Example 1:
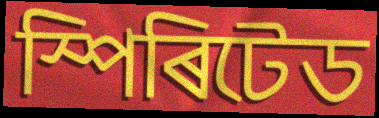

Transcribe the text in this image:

স্পিৰিটেড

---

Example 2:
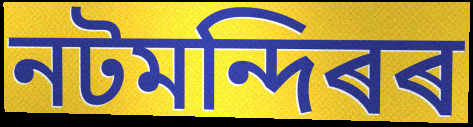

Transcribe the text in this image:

নটমন্দিৰৰ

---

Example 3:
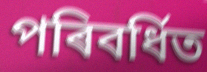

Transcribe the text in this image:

পৰিবৰ্ধিত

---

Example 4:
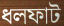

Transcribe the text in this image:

ধলফাট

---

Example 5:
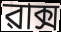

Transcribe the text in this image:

ৱাক্স